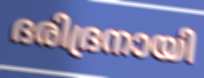
ദരിദ്രനായി